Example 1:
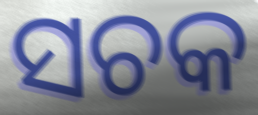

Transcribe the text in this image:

ସଚକ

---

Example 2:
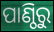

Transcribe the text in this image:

ପାଣ୍ଠିରୁ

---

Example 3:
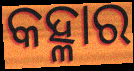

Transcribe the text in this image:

କହ୍ଳାର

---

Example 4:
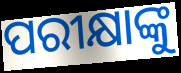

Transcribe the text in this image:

ପରୀକ୍ଷାଙ୍କୁ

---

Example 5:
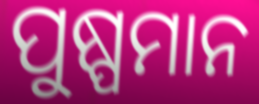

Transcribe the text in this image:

ପୁଷ୍ପମାନ